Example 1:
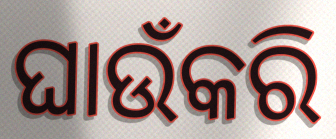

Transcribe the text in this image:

ଘାଉଁକରି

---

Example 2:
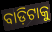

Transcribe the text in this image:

ବାଡ଼ିଟାକୁ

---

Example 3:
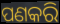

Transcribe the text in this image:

ପଣକରି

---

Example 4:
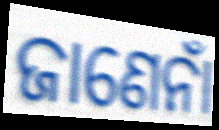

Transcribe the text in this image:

ଜାଣେନାଁ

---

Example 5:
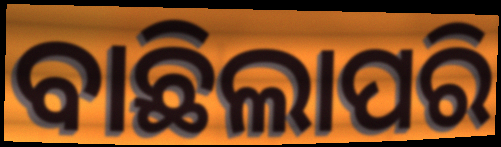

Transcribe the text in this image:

ବାଛିଲାପରି